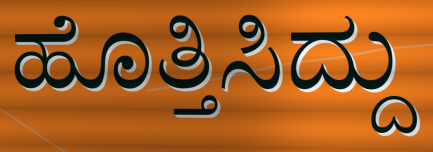
ಹೊತ್ತಿಸಿದ್ದು